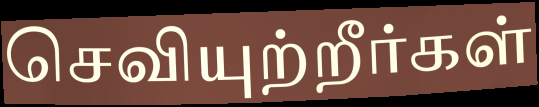
செவியுற்றீர்கள்